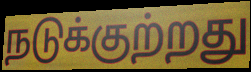
நடுக்குற்றது